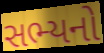
સભ્યનો